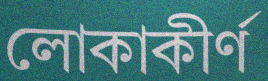
লোকাকীর্ণ